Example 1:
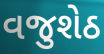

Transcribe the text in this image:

વજુશેઠ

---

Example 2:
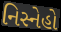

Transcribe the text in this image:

નિસ્નેહો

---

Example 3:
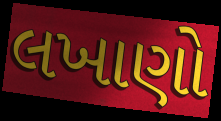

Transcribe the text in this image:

લખાણો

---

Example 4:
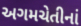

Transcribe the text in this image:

અગમચેતીનાં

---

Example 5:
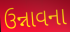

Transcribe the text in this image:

ઉન્નાવના